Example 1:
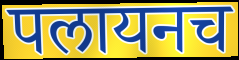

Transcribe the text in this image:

पलायनच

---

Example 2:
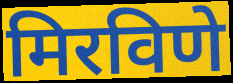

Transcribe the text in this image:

मिरविणे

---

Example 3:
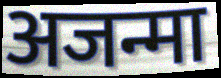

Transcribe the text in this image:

अजन्मा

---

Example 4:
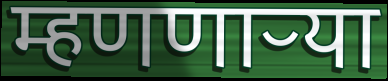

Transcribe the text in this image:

म्हणणाऱ्या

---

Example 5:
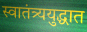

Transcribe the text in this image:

स्वातंत्र्ययुद्धात